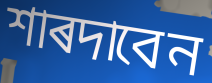
শাৰদাবেন